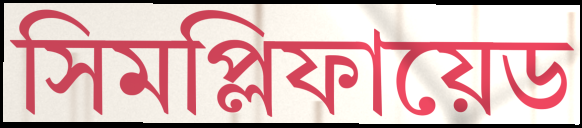
সিমপ্লিফায়েড